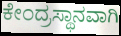
ಕೇಂದ್ರಸ್ಥಾನವಾಗಿ